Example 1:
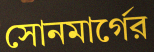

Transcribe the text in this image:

সোনমার্গের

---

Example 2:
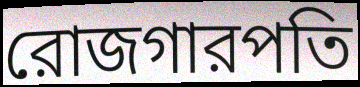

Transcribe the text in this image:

রোজগারপতি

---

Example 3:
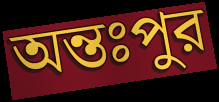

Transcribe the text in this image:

অন্তঃপুর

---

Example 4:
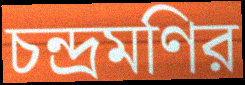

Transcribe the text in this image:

চন্দ্রমণির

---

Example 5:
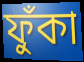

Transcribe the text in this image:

ফুঁকা